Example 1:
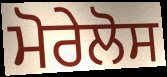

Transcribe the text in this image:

ਮੋਰੇਲੋਸ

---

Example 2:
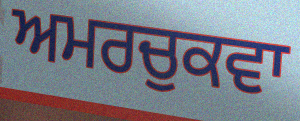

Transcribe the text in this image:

ਅਮਰਚੁਕਵਾ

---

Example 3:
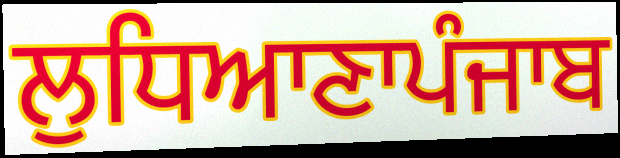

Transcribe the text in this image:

ਲੁਧਿਆਣਾਪੰਜਾਬ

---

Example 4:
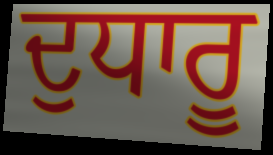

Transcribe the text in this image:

ਦੁਧਾਰੂ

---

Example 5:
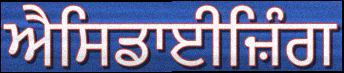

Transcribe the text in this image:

ਐਸਿਡਾਈਜ਼ਿੰਗ